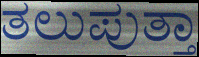
ತಲುಪುತ್ತಾ